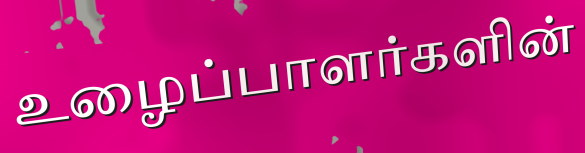
உழைப்பாளர்களின்